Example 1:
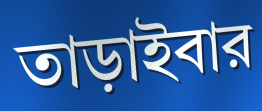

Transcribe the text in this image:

তাড়াইবার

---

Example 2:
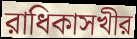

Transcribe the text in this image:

রাধিকাসখীর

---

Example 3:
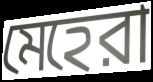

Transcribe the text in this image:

মেহেরা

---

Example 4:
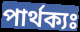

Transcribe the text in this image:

পার্থক্যঃ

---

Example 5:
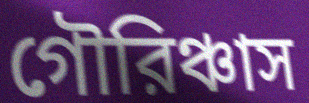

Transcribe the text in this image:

গৌরিঞ্চাস